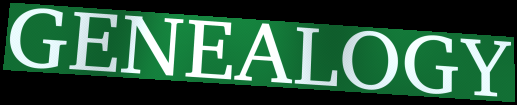
GENEALOGY